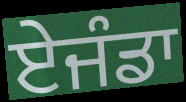
ਏਜੰਡਾ